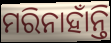
ମରିନାହାଁନ୍ତି